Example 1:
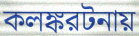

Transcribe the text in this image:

কলঙ্করটনায়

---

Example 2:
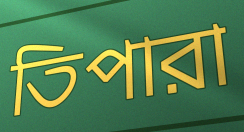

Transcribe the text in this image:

তিপারা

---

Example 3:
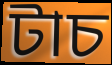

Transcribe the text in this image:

টাচ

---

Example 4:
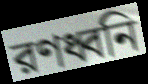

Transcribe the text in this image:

রণধ্বনি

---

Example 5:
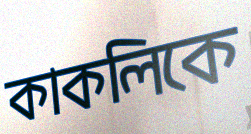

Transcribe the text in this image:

কাকলিকে